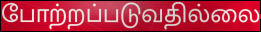
போற்றப்படுவதில்லை